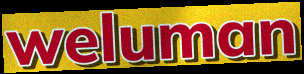
weluman